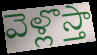
వెళ్లొస్తా